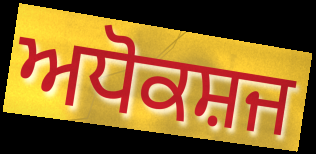
ਅਧੋਕਸ਼ਜ